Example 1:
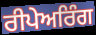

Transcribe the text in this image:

ਰੀਪੇਅਰਿੰਗ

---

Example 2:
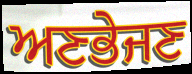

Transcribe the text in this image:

ਅਣਭੇਜਣ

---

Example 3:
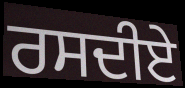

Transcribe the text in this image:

ਰਸਦੀਏ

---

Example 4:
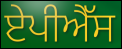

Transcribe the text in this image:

ਏਪੀਐੱਸ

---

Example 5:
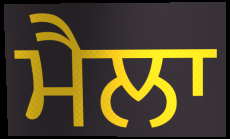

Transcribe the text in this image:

ਮੈਲਾ